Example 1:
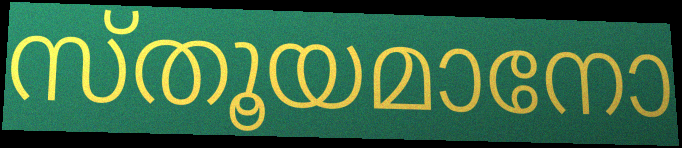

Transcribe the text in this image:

സ്തൂയമാനോ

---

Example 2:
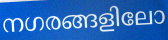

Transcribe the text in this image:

നഗരങ്ങളിലോ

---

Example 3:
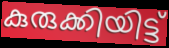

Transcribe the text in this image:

കുരുക്കിയിട്ട്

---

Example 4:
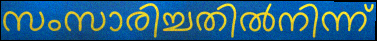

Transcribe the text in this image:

സംസാരിച്ചതിൽനിന്ന്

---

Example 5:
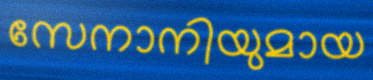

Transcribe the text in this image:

സേനാനിയുമായ